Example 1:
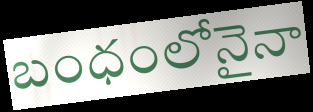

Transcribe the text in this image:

బంధంలోనైనా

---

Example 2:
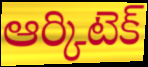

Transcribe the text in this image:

ఆర్కిటెక్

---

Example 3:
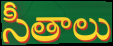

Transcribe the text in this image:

సీతాలు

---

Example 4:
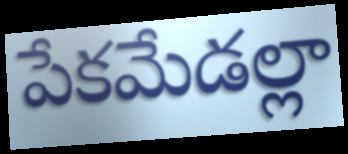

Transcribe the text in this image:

పేకమేడల్లా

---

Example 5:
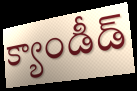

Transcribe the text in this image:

క్యాండీడ్